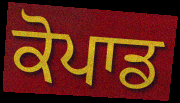
ਕੋਪਾਡ